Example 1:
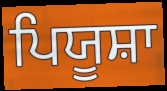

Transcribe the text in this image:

ਪਿਯੂਸ਼ਾ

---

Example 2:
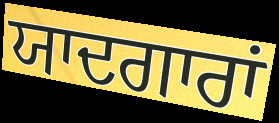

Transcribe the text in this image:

ਯਾਦਗਾਰਾਂ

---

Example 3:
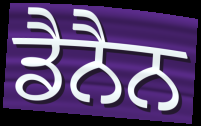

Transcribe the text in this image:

ਡੈਨੈਨ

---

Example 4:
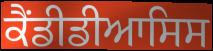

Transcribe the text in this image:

ਕੈਂਡੀਡੀਆਸਿਸ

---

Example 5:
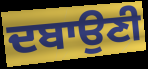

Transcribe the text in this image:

ਦਬਾਉਣੀ